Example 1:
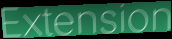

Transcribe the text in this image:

Extension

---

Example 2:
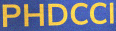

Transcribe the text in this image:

PHDCCI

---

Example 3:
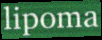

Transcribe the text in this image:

lipoma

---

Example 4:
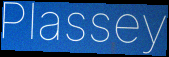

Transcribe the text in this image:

Plassey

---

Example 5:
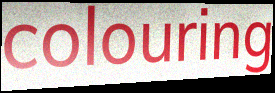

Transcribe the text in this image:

colouring